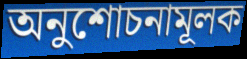
অনুশোচনামূলক